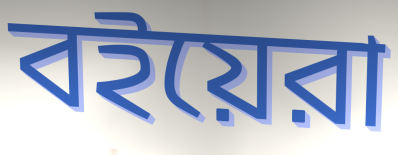
বইয়েরা